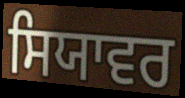
ਸਿਯਾਵਰ